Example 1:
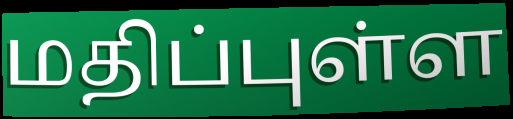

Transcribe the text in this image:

மதிப்புள்ள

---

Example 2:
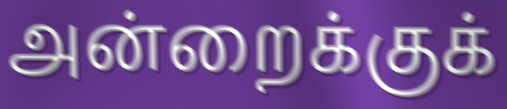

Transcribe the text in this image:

அன்றைக்குக்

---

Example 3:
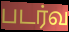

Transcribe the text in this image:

படர்வ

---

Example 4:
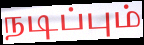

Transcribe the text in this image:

நடிப்பும்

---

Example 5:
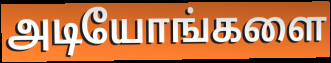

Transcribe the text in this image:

அடியோங்களை